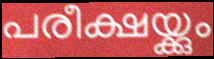
പരീക്ഷയ്ക്കും